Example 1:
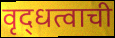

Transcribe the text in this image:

वृद्धत्वाची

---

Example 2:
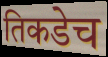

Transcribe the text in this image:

तिकडेच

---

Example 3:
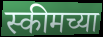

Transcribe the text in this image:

स्कीमच्या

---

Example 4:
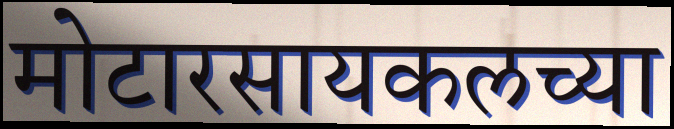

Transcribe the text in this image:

मोटारसायकलच्या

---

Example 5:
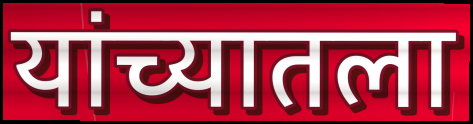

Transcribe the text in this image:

यांच्यातला